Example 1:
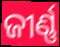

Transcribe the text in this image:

ଜୀର୍ଣ୍ଣ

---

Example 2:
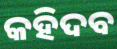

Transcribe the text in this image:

କହିଦବ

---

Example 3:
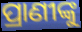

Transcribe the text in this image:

ପ୍ରାଣୀଙ୍କୁ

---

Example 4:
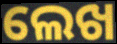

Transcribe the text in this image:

ଲେଖ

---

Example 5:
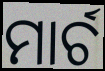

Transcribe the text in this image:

ମାର୍ଚ